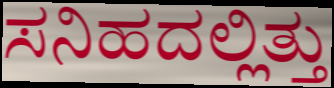
ಸನಿಹದಲ್ಲಿತ್ತು